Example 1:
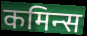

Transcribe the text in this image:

कमिन्स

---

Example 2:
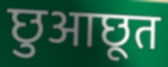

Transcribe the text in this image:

छुआछूत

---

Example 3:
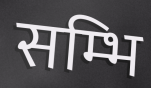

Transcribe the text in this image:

सम्भि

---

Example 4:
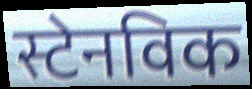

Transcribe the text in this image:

स्टेनविक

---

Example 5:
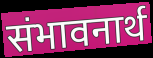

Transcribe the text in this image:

संभावनार्थ